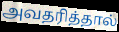
அவதரித்தால்